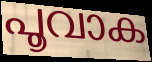
പൂവാക